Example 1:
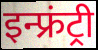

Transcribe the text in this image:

इन्फ्रंट्री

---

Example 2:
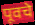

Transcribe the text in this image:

पूवचे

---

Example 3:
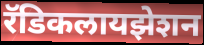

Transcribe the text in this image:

रॅडिकलायझेशन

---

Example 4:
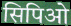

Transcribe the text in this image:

सिपिओ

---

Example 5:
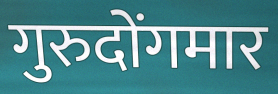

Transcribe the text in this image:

गुरुदोंगमार